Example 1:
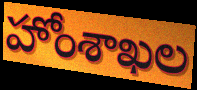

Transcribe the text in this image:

హోంశాఖల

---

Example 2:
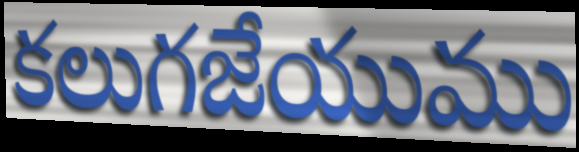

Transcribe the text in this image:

కలుగజేయుము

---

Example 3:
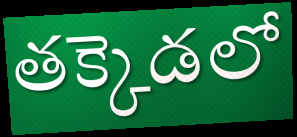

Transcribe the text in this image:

తక్కెడలో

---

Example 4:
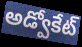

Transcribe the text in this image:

అడ్వోకేట్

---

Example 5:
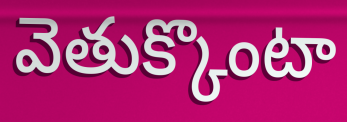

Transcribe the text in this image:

వెతుక్కొంటా